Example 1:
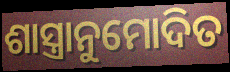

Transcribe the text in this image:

ଶାସ୍ତ୍ରାନୁମୋଦିତ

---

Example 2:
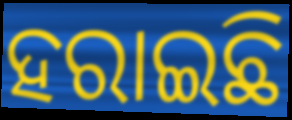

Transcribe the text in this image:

ହରାଇଛି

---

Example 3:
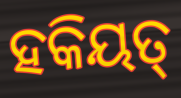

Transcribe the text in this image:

ହକିୟତ୍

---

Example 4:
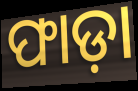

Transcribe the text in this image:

ଫାଡ଼ା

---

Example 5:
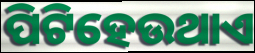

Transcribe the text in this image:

ପିଟିହେଉଥାଏ